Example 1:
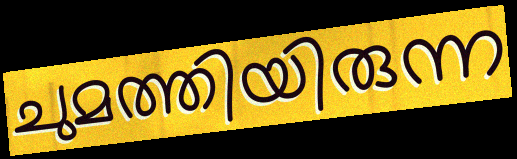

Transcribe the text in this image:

ചുമത്തിയിരുന്ന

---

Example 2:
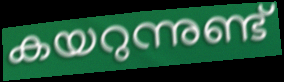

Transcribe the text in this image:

കയറുന്നുണ്ട്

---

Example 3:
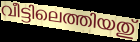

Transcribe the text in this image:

വീട്ടിലെത്തിയതു്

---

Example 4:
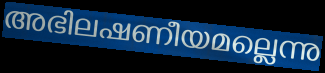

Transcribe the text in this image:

അഭിലഷണീയമല്ലെന്നു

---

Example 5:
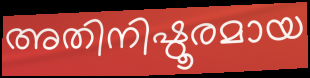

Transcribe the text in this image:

അതിനിഷ്ഠൂരമായ